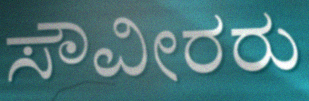
ಸೌವೀರರು